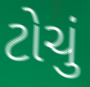
ટોચું